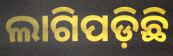
ଲାଗିପଡ଼ିଛି